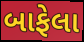
બાફેલા